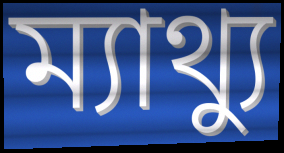
ম্যাথ্যু